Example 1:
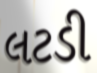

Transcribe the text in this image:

લટડી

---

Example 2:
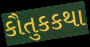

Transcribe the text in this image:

કૌતુકકથા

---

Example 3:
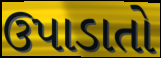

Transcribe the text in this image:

ઉપાડાતો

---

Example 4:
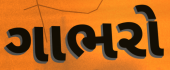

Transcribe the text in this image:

ગાભરો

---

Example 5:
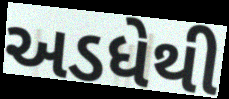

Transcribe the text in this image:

અડધેથી